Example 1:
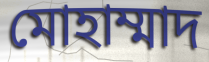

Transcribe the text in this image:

মোহাম্মাদ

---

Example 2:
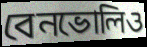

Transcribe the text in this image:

বেনভোলিও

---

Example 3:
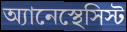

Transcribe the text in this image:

অ্যানেস্থেসিস্ট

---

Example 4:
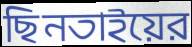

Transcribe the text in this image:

ছিনতাইয়ের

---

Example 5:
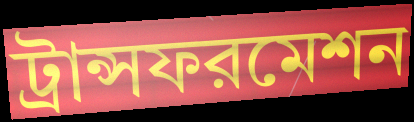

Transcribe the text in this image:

ট্রান্সফরমেশন